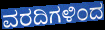
ವರದಿಗಳಿಂದ